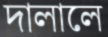
দালালে